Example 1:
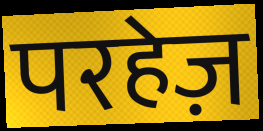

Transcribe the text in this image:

परहेज़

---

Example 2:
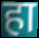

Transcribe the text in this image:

हा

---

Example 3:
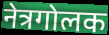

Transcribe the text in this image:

नेत्रगोलक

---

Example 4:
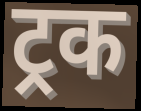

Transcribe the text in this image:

ट्रक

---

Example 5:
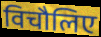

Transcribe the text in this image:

विचौलिए